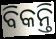
ବିକନ୍ତି